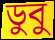
ডুবু